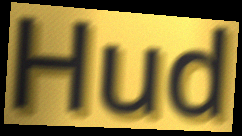
Hud